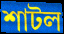
শাটল